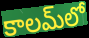
కాలమ్‍లో